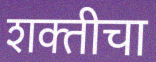
शक्‍तीचा